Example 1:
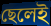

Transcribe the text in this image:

ছেলেই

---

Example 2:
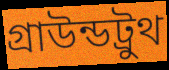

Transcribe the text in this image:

গ্রাউন্ডট্রুথ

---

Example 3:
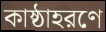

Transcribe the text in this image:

কাষ্ঠাহরণে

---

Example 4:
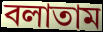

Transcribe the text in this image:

বলাতাম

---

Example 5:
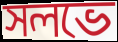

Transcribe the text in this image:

সলভে